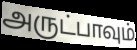
அருட்பாவும்